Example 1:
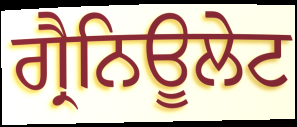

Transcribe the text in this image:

ਗ੍ਰੈਨਿਊਲੇਟ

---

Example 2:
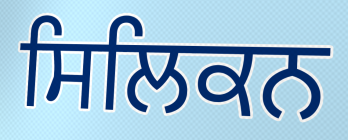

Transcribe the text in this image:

ਸਿਲਿਕਨ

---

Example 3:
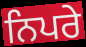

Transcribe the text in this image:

ਨਿਪਰੇ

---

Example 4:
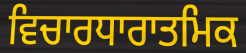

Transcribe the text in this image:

ਵਿਚਾਰਧਾਰਾਤਮਿਕ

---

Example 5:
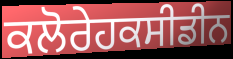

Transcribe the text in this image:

ਕਲੋਰੇਹਕਸੀਡੀਨ